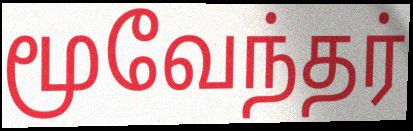
மூவேந்தர்